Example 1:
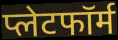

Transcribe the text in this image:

प्लेटफॉर्म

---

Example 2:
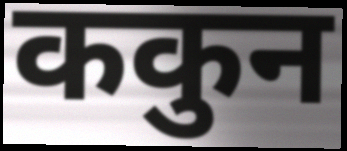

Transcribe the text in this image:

ककुन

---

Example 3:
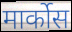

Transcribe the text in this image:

मार्कोस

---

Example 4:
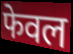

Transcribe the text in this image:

फेवल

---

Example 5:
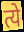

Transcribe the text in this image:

त्ये